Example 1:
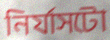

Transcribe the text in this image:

নিৰ্যাসটো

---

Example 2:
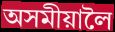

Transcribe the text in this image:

অসমীয়ালৈ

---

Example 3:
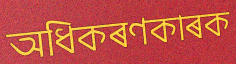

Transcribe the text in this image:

অধিকৰণকাৰক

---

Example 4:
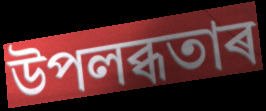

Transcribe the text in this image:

উপলব্ধতাৰ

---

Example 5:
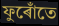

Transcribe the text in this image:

ফুৰোঁতে